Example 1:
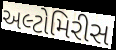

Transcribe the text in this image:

અલ્ટોમિરીસ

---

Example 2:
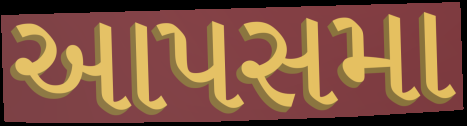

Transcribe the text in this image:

આપસમા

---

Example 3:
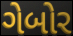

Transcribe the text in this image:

ગેબોર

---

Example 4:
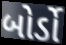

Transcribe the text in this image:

બોર્ડો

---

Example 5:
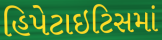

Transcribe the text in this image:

હિપેટાઇટિસમાં